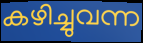
കഴിച്ചുവന്ന